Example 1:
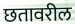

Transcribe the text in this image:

छतावरील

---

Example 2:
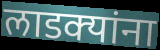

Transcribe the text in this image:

लाडक्यांना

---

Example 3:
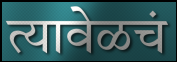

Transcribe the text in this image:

त्यावेळचं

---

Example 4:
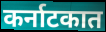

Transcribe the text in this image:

कर्नाटकात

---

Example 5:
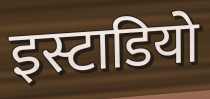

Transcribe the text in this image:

इस्टाडियो